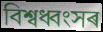
বিশ্বধ্বংসৰ